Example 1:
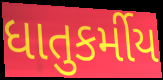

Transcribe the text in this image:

ધાતુકર્મીય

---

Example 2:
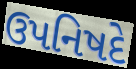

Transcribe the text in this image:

ઉપનિષદે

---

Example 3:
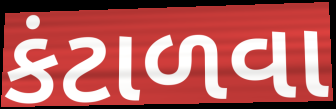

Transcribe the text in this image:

કંટાળવા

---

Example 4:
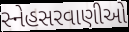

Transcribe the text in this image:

સ્નેહસરવાણીઓ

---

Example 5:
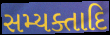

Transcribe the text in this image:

સમ્યક્તાદિ